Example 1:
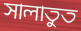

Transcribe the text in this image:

সালাতুত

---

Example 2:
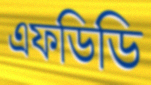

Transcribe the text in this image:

এফডিডি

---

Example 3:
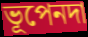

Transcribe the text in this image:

ভূপেনদা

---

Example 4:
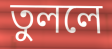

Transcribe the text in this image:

তুললে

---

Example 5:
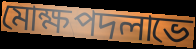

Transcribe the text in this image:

মোক্ষপদলাভে